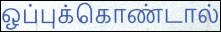
ஒப்புக்கொண்டால்